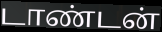
டாண்டன்